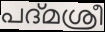
പദ്മശ്രീ